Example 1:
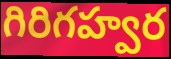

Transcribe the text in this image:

గిరిగహ్వర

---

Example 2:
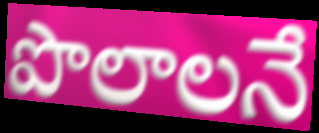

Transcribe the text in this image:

పొలాలనే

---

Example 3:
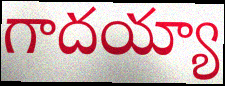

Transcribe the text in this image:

గాదయ్యా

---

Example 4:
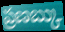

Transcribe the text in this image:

ప్రణబ్కు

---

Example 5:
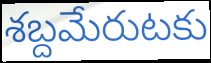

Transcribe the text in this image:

శబ్దమేరుటకు